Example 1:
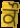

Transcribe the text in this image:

ਕੌ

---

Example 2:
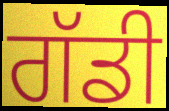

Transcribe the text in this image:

ਗੱਡੀ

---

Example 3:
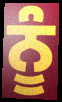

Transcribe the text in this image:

ਨੂੰ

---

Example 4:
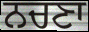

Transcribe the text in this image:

ਨਚਣਾ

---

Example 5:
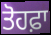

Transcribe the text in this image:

ਤੋਹਫ਼ਾ